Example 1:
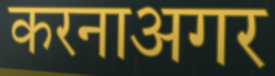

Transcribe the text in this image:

करनाअगर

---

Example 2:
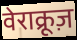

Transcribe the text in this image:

वेराक्रूज़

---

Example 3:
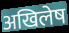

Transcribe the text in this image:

अखिलेष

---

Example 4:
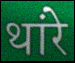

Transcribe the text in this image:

थांरे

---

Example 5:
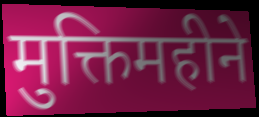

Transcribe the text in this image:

मुक्तिमहीने